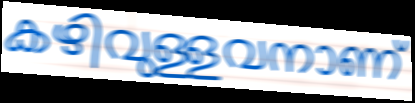
കഴിവുള്ളവനാണ്